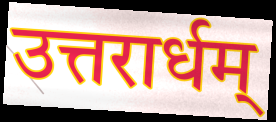
उत्तरार्धम्